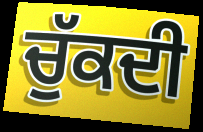
ਚੁੱਕਦੀ